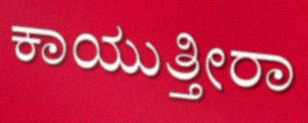
ಕಾಯುತ್ತೀರಾ